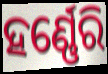
ହର୍ଣ୍ଣେରି